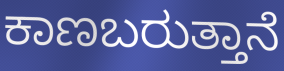
ಕಾಣಬರುತ್ತಾನೆ